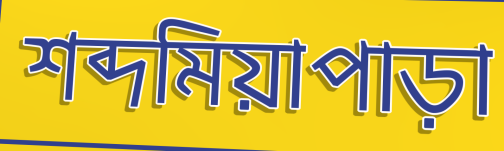
শব্দমিয়াপাড়া